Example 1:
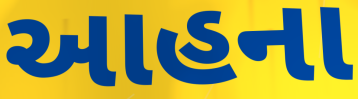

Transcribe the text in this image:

આહના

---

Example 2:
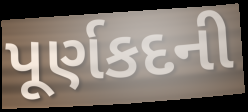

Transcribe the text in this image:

પૂર્ણકદની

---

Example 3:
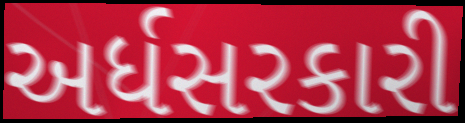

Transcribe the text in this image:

અર્ધસરકારી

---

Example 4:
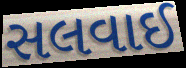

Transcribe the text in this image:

સલવાઈ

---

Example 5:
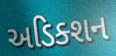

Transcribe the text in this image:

અડિક્શન